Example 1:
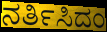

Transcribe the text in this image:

ನರ್ತಿಸಿದಂ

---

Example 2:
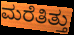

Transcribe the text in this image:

ಮರೆತಿತ್ತು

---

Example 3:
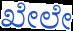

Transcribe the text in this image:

ಖೇಲೇ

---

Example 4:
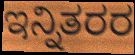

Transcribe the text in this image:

ಇನ್ನಿತರರ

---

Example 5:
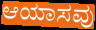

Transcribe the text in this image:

ಆಯಾಸವು